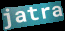
jatra